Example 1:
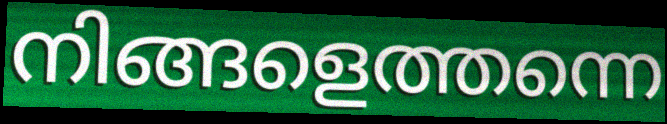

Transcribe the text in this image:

നിങ്ങളെത്തന്നെ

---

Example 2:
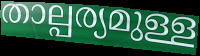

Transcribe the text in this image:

താല്പര്യമുള്ള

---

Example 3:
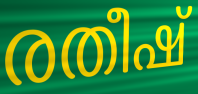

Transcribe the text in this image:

രതീഷ്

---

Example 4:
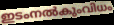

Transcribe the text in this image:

ഇടംനൽകുംവിധം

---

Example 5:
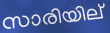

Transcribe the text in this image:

സാരിയില്